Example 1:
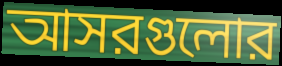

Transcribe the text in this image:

আসরগুলোর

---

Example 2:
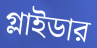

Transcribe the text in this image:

গ্লাইডার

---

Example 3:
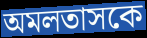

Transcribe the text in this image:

অমলতাসকে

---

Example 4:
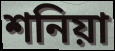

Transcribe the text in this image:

শনিয়া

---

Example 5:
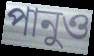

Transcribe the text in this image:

পানুও